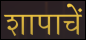
शापाचें